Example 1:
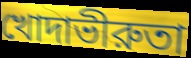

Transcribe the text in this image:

খোদাভীরুতা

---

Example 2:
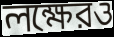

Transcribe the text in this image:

লক্ষেরও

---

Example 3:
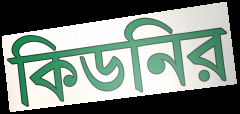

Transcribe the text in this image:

কিডনির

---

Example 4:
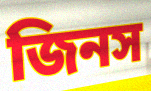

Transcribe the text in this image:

জিনস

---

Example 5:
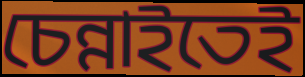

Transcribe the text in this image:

চেন্নাইতেই